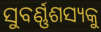
ସୁବର୍ଣ୍ଣଶସ୍ୟକୁ